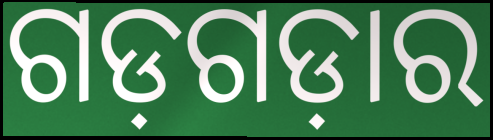
ଗଡ଼ଗଡ଼ାର